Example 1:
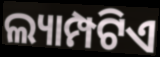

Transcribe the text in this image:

ଲ୍ୟାମ୍ପଟିଏ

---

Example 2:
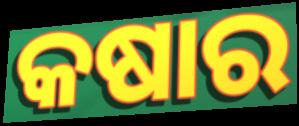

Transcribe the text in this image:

କଷାର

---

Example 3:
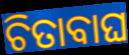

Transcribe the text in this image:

ଚିତାବାଘ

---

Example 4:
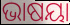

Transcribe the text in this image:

ଭାଷୟା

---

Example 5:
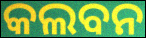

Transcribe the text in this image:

କଲବନ